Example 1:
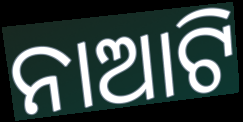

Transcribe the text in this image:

ନାଆଟି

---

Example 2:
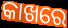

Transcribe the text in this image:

କାଖରେ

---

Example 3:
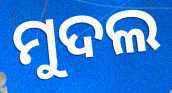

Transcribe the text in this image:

ମୁଦଲ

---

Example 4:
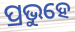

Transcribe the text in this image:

ପ୍ରଭୁହେ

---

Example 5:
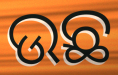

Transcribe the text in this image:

ଉଛ